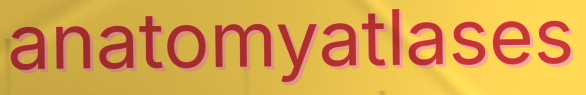
anatomyatlases